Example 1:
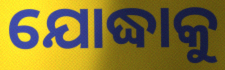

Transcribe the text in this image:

ଯୋଦ୍ଧାକୁ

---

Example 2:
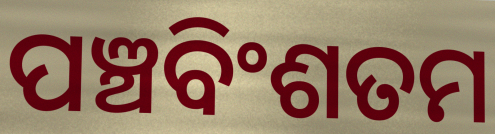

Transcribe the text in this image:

ପଞ୍ଚବିଂଶତମ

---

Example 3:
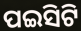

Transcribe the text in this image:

ପଇସିଟି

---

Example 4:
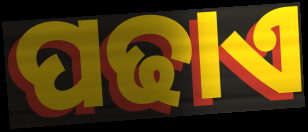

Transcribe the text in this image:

ପଢାଏ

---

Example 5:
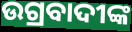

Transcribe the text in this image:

ଉଗ୍ରବାଦୀଙ୍କ